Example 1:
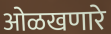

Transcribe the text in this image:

ओळखणारे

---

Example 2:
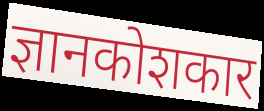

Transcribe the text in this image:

ज्ञानकोशकार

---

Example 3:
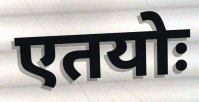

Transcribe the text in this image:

एतयोः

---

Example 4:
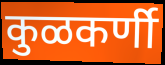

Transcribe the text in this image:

कुळकर्णी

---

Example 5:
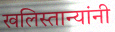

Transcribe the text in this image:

खलिस्तान्यांनी